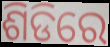
ଶିଡିରେ